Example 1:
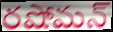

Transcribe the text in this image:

రషోమన్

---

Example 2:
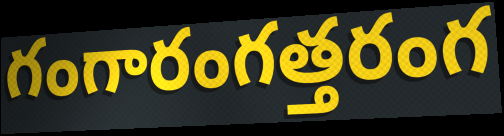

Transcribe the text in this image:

గంగారంగత్తరంగ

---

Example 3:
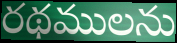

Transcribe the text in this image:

రథములను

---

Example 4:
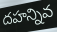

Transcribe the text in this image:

దహన్నివ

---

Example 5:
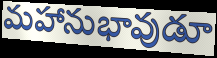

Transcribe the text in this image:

మహానుభావుడూ